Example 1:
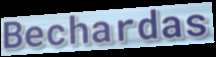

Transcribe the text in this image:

Bechardas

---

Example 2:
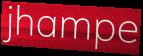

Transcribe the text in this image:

jhampe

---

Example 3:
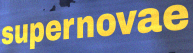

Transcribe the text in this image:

supernovae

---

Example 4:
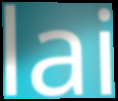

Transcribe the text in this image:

lai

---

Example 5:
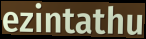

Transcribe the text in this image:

ezintathu